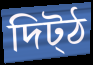
দিট্ঠ